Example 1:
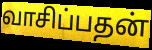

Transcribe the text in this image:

வாசிப்பதன்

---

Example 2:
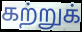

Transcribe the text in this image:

கற்றுக்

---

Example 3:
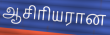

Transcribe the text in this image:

ஆசிரியரான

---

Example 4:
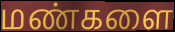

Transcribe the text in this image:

மண்களை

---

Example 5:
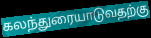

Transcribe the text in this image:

கலந்துரையாடுவதற்கு